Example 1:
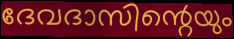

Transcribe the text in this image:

ദേവദാസിന്റെയും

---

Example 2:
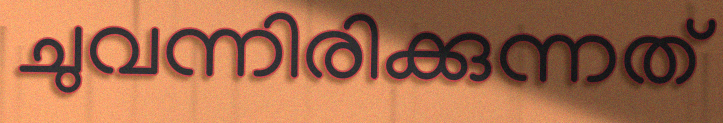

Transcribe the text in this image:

ചുവന്നിരിക്കുന്നത്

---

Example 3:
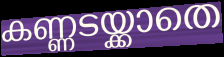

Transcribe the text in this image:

കണ്ണടയ്ക്കാതെ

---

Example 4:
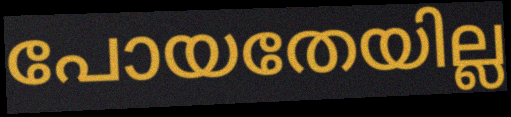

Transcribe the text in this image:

പോയതേയില്ല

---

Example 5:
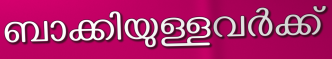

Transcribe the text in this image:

ബാക്കിയുള്ളവർക്ക്